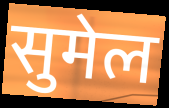
सुमेल